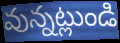
వున్నట్లుండి